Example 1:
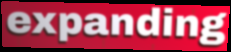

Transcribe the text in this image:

expanding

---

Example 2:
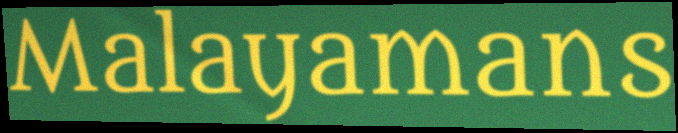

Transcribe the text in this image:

Malayamans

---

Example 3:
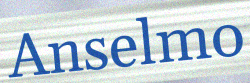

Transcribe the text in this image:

Anselmo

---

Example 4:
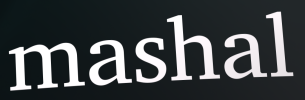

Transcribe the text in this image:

mashal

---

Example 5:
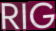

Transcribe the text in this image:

RIG